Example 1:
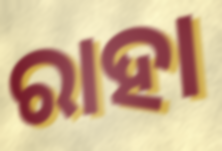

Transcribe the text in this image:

ରାହା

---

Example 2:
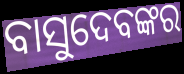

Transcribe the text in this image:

ବାସୁଦେବଙ୍କର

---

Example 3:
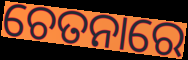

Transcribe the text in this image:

ଚେତନାରେ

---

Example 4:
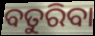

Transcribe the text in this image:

ବତୁରିବା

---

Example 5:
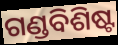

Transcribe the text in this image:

ଗଣ୍ଡବିଶିଷ୍ଟ